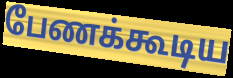
பேணக்கூடிய